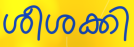
ശീശക്കി